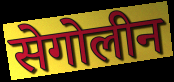
सेगोलीन